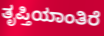
ತೃಪ್ತಿಯಾಂತಿರೆ